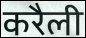
करैली